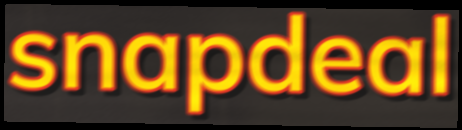
snapdeal